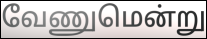
வேணுமென்று